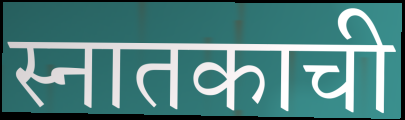
स्नातकाची